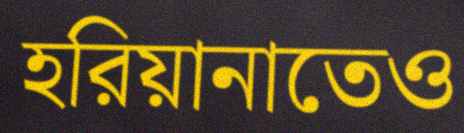
হরিয়ানাতেও